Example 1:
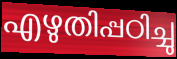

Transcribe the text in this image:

എഴുതിപ്പഠിച്ചു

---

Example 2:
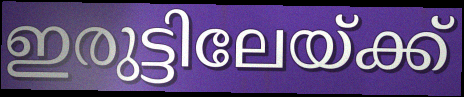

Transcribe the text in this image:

ഇരുട്ടിലേയ്ക്ക്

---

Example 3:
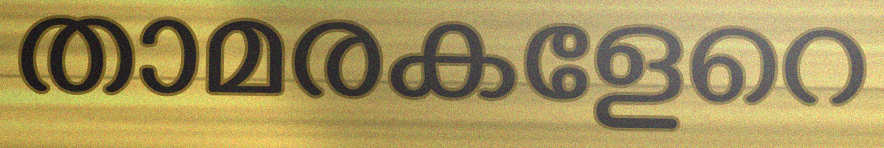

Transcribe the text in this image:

താമരകളേറെ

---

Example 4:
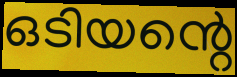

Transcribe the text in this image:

ഒടിയന്റെ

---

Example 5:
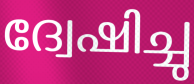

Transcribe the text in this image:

ദ്വേഷിച്ചു